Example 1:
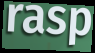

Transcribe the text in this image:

rasp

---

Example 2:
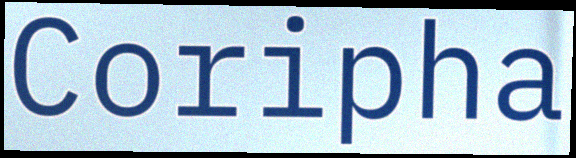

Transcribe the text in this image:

Coripha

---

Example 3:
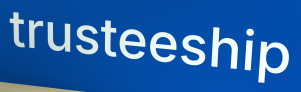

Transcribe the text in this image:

trusteeship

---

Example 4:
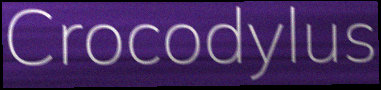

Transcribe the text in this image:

Crocodylus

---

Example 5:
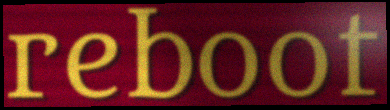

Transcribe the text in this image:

reboot